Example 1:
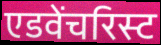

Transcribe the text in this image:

एडवेंचरिस्ट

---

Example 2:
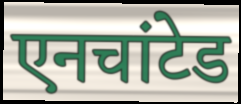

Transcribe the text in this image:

एनचांटेड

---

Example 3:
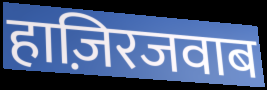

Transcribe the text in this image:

हाज़िरजवाब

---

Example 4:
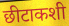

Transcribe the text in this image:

छीटाकशी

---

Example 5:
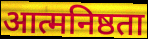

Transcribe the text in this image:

आत्मनिष्ठता